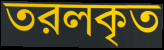
তরলকৃত